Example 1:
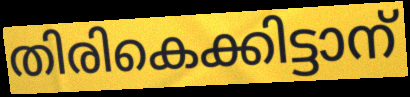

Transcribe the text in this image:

തിരികെക്കിട്ടാന്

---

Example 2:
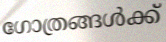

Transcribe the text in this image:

ഗോത്രങ്ങൾക്ക്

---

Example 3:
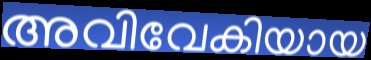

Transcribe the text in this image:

അവിവേകിയായ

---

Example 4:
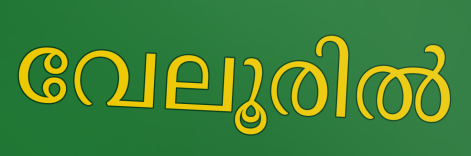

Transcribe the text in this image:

വേലൂരിൽ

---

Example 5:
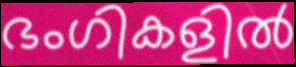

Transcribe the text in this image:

ഭംഗികളിൽ